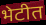
भेटीत